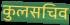
कुलसचिव